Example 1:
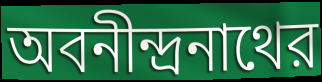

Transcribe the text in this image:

অবনীন্দ্রনাথের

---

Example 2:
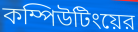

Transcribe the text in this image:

কম্পিউটিংয়ের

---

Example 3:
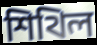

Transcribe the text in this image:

শিথিল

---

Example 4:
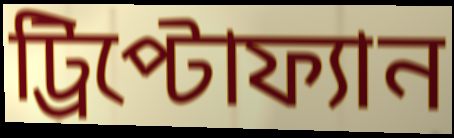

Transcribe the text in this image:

ট্রিপ্টোফ্যান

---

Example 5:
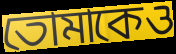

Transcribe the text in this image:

তোমাকেও